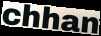
chhan